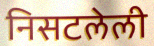
निसटलेली